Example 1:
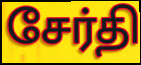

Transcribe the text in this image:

சேர்தி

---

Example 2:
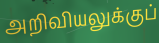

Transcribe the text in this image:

அறிவியலுக்குப்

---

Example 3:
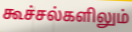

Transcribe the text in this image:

கூச்சல்களிலும்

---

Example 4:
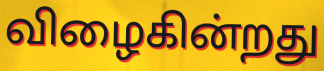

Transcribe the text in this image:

விழைகின்றது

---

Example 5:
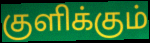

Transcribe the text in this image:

குளிக்கும்